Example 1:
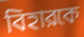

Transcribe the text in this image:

বিহারকে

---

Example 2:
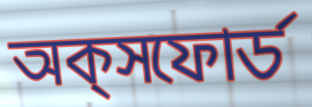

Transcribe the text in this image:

অক্‌সফোর্ড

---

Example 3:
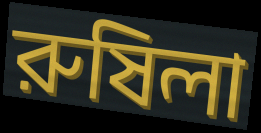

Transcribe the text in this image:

রুষিলা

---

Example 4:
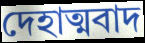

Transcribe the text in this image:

দেহাত্মবাদ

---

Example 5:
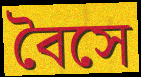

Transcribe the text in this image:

বৈসে